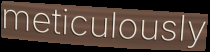
meticulously